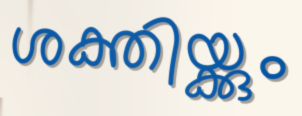
ശക്തിയ്ക്കും